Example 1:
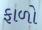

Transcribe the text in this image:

ફાળો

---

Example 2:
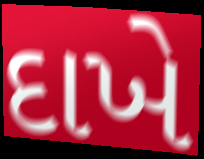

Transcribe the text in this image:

દાખે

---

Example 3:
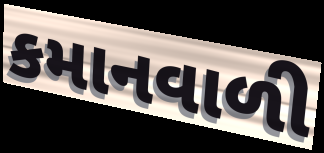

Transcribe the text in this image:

કમાનવાળી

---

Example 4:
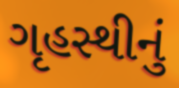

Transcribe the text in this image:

ગૃહસ્થીનું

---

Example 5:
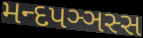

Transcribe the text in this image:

મન્દપઞ્ઞસ્સ